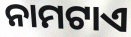
ନାମଟାଏ